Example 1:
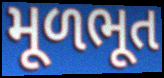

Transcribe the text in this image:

મૂળભૂત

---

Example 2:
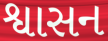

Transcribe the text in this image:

શ્વાસન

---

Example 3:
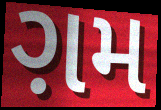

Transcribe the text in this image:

ગ઼મ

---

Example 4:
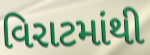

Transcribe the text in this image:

વિરાટમાંથી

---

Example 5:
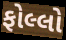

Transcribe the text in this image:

ફોલ્લો